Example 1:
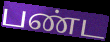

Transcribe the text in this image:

பண்ட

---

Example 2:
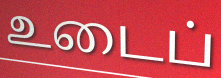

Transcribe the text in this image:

உடைப்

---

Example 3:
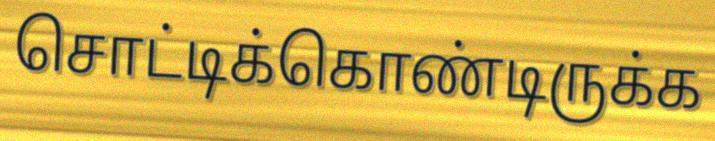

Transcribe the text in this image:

சொட்டிக்கொண்டிருக்க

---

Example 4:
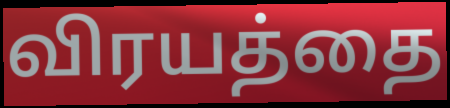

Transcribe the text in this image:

விரயத்தை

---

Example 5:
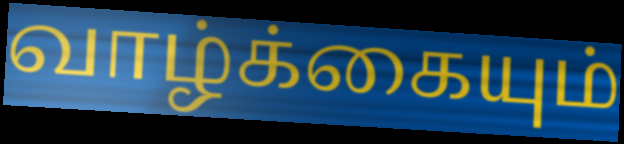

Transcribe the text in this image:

வாழ்க்கையும்